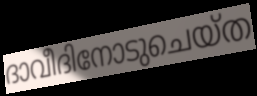
ദാവീദിനോടുചെയ്ത